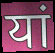
यां